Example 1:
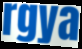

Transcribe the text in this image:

rgya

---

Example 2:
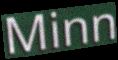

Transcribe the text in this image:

Minn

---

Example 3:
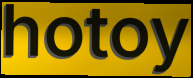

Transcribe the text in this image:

hotoy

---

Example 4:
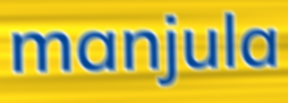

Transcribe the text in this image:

manjula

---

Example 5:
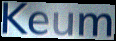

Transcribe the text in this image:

Keum